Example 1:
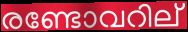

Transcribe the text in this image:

രണ്ടോവറില്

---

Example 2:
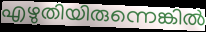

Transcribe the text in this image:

എഴുതിയിരുന്നെങ്കിൽ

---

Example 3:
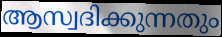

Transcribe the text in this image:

ആസ്വദിക്കുന്നതും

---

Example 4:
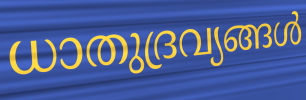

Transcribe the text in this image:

ധാതുദ്രവ്യങ്ങൾ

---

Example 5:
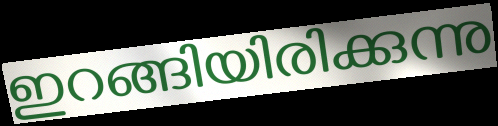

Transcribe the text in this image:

ഇറങ്ങിയിരിക്കുന്നു